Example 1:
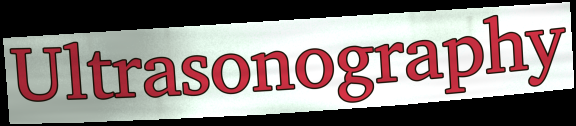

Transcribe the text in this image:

Ultrasonography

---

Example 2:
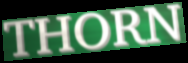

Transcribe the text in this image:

THORN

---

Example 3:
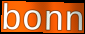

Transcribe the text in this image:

bonn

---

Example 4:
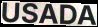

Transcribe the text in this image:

USADA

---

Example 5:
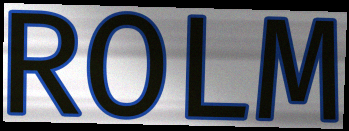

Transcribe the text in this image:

ROLM